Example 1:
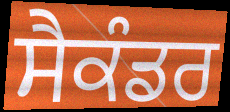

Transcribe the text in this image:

ਸੈਕੰਡਰ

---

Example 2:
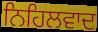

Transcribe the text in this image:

ਨਿਹਿਲਵਾਦ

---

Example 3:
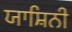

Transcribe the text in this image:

ਯਾਸ਼ਿਨੀ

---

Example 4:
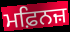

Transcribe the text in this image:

ਮਫ਼ਿਨਜ਼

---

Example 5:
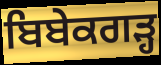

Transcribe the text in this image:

ਬਿਬੇਕਗੜ੍ਹ